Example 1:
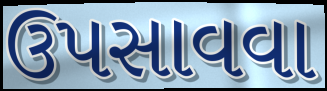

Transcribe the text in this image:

ઉપસાવવા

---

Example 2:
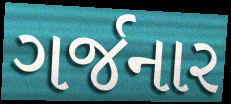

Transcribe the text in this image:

ગર્જનાર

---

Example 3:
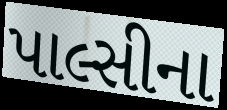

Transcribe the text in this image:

પાલ્સીના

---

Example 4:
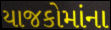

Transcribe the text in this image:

યાજકોમાંના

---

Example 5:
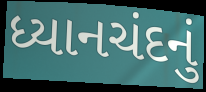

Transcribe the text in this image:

ધ્યાનચંદનું